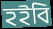
হইবি